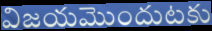
విజయమొందుటకు